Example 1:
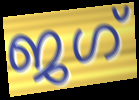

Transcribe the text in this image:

ജഗ്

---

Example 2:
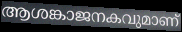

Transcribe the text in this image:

ആശങ്കാജനകവുമാണ്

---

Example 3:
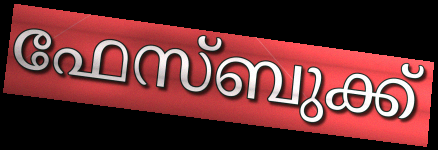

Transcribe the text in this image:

ഫേസ്ബുക്ക്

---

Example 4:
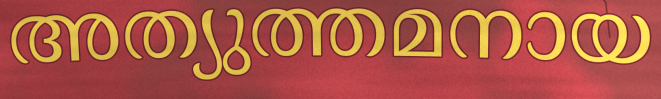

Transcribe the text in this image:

അത്യുത്തമനായ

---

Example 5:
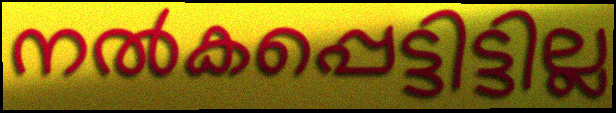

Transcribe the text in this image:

നൽകപ്പെട്ടിട്ടില്ല